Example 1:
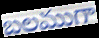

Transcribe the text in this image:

బలముగా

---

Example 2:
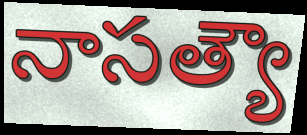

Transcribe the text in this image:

నాసత్యౌ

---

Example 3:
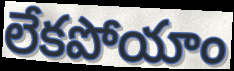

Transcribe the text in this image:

లేకపోయాం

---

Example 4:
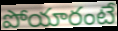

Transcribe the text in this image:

పోయారంటే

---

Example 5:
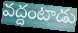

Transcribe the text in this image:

వద్దంటాడు